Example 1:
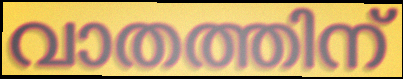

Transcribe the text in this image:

വാതത്തിന്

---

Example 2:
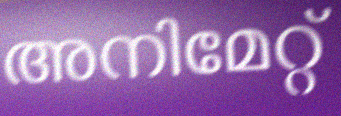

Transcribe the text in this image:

അനിമേറ്റ്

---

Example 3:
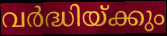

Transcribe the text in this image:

വർദ്ധിയ്ക്കും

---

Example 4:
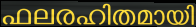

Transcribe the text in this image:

ഫലരഹിതമായി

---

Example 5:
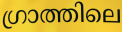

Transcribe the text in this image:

ഗ്രാത്തിലെ